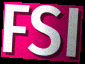
FSI